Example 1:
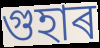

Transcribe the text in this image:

গুহাৰ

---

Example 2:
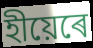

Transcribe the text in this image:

হীয়েৰে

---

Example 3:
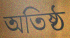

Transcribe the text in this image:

অতিষ্ঠ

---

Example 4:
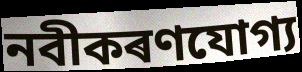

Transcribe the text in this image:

নবীকৰণযোগ্য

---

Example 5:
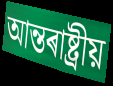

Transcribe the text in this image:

আন্তৰাষ্ট্ৰীয়